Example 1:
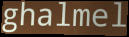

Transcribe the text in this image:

ghalmel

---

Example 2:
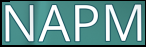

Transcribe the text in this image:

NAPM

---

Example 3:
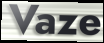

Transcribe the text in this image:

Vaze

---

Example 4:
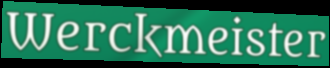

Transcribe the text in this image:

Werckmeister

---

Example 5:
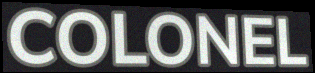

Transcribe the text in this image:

COLONEL